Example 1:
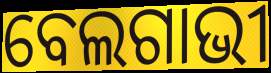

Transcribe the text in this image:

ବେଲଗାଭୀ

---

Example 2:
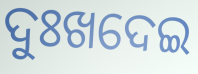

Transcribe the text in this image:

ଦୁଃଖଦେଇ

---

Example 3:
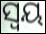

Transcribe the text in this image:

ସ୍ବୟ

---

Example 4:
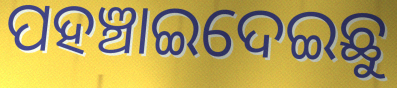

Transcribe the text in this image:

ପହଞ୍ଚାଇଦେଇଛୁ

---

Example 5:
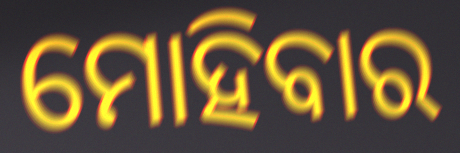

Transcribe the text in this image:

ମୋହିବାର